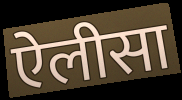
ऐलीसा